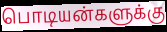
பொடியன்களுக்கு